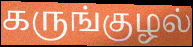
கருங்குழல்